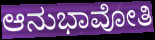
ಆನುಭಾವೋತಿ